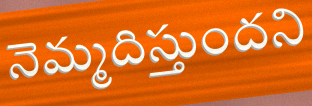
నెమ్మదిస్తుందని